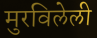
मुरविलेली